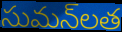
సుమన్‌లత